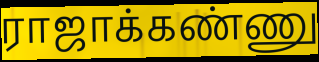
ராஜாக்கண்ணு